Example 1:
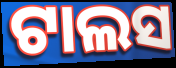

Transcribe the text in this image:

ଟାଲସ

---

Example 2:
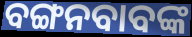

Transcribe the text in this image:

ବଙ୍ଗନବାବଙ୍କ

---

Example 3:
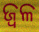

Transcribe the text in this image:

ଜ୍ୱଳ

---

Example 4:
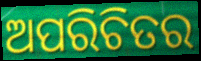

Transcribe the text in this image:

ଅପରିଚିତର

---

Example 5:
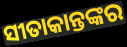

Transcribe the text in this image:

ସୀତାକାନ୍ତଙ୍କର